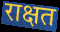
राक्षत